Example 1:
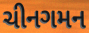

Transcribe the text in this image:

ચીનગમન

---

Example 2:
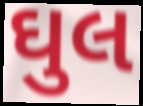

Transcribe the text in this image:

ઘુલ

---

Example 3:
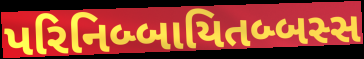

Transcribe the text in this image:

પરિનિબ્બાયિતબ્બસ્સ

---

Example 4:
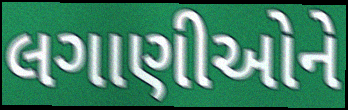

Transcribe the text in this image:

લગાણીઓને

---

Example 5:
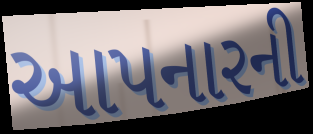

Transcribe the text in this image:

આપનારની